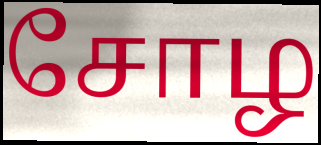
சோழ